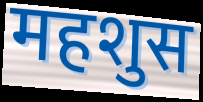
महशुस